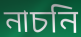
নাচনি